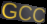
GCC